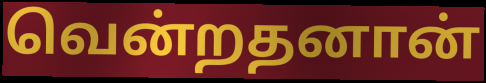
வென்றதனான்